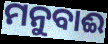
ମନୁବାଈ